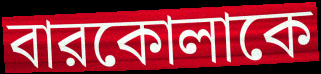
বারকোলাকে